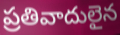
ప్రతివాదులైన